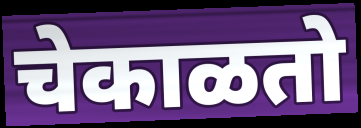
चेकाळतो